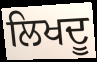
ਲਿਖਦੂ